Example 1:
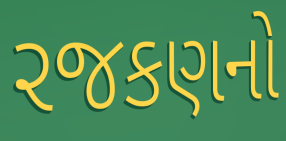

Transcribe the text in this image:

રજકણનો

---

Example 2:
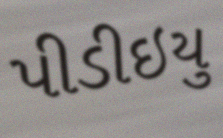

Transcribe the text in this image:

પીડીઇયુ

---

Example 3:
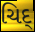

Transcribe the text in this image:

ચિદ્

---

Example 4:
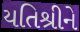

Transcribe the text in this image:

યતિશ્રીને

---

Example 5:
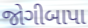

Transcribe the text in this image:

જોગીબાપા